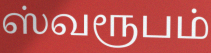
ஸ்வரூபம்